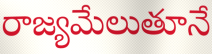
రాజ్యమేలుతూనే